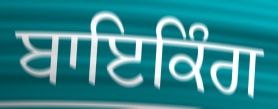
ਬਾਇਕਿੰਗ